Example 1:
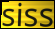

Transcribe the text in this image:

siss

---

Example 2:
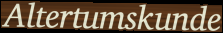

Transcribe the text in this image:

Altertumskunde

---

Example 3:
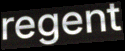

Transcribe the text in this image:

regent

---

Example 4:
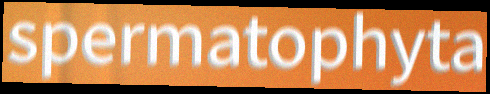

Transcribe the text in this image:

spermatophyta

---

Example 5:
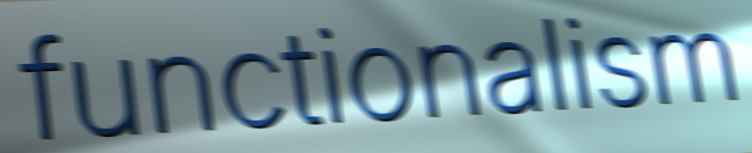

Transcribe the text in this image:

functionalism